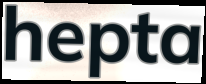
hepta